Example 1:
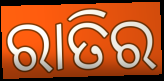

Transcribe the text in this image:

ରାତିର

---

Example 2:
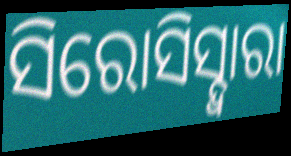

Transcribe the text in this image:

ସିରୋସିସ୍ଦ୍ୱାରା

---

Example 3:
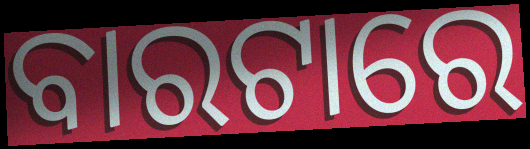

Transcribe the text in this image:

ବାରଟାରେ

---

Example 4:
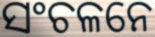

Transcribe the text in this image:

ସଂଚଳନେ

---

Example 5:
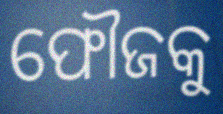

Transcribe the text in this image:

ଫୌଜକୁ